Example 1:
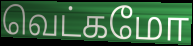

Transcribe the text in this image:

வெட்கமோ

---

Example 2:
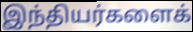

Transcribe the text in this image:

இந்தியர்களைக்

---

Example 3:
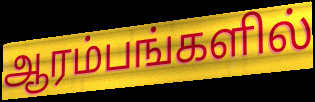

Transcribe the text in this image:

ஆரம்பங்களில்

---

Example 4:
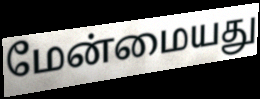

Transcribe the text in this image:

மேன்மையது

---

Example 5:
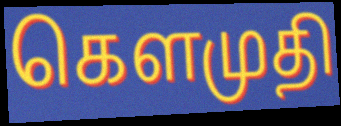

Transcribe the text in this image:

கௌமுதி